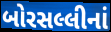
બોરસલ્લીનાં